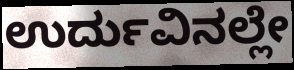
ಉರ್ದುವಿನಲ್ಲೇ